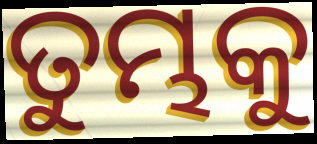
ତୁମ୍ଭକୁ